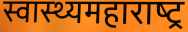
स्वास्थ्यमहाराष्ट्र